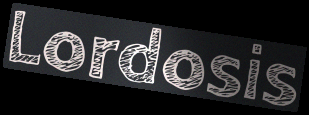
Lordosis